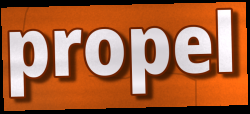
propel